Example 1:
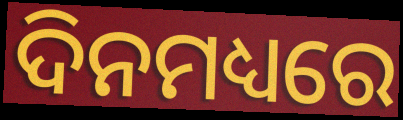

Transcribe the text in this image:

ଦିନମଧ୍ୟରେ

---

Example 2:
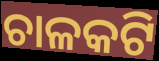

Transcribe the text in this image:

ଚାଳକଟି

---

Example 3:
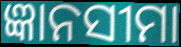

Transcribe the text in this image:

ଜ୍ଞାନସୀମା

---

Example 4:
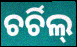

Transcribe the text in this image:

ଚର୍ଚିଲ୍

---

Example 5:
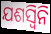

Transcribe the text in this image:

ଯଶସ୍ୱିନି